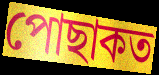
পোছাকত